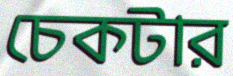
চেকটার